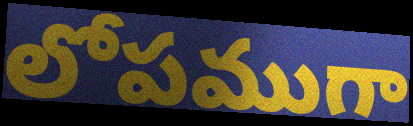
లోపముగా